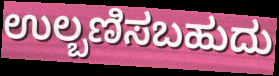
ಉಲ್ಬಣಿಸಬಹುದು